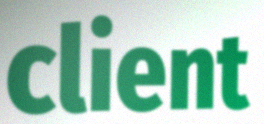
client